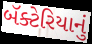
બૅક્ટેરિયાનું